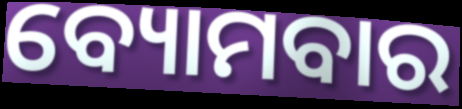
ବ୍ୟୋମବାର